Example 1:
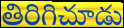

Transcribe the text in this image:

తిరిగిచూడు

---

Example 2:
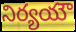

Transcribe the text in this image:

నిర్యయౌ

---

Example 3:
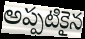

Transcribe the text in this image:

అప్పటికైన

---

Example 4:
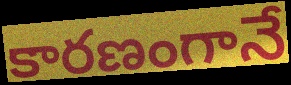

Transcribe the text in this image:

కారణంగానే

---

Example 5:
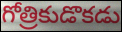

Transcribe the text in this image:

గోత్రికుడొకడు